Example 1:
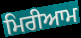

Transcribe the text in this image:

ਮਿਰੀਆਮ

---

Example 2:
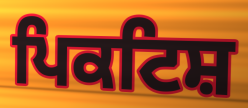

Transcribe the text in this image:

ਪਿਕਟਿਸ਼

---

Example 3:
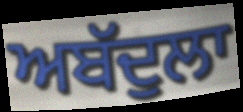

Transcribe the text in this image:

ਅਬੱਦੁਲਾ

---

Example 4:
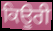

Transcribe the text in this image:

ਕਿਊਰੀ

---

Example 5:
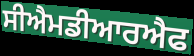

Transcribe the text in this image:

ਸੀਐਮਡੀਆਰਐਫ